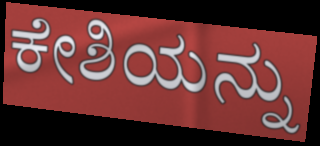
ಕೇಶಿಯನ್ನು